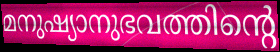
മനുഷ്യാനുഭവത്തിന്റെ